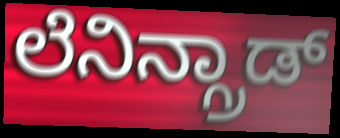
ಲೆನಿನ್ಗ್ರಾಡ್